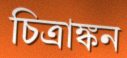
চিত্রাঙ্কন